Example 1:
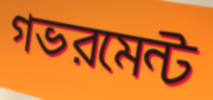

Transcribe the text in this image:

গভরমেন্ট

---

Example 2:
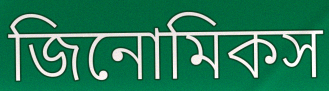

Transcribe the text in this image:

জিনোমিকস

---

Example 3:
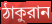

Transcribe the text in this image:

ঠাকুরান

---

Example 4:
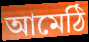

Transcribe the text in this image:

আমেঠি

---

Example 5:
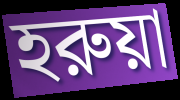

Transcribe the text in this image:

হরুয়া